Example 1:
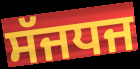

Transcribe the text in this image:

ਸੱਜਧਜ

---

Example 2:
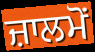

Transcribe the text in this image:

ਜ਼ਾਲਮੋਂ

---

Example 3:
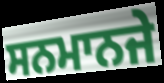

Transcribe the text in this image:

ਸਨਮਾਨਜੇ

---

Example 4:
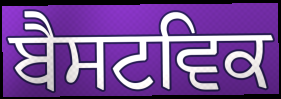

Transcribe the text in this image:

ਬੈਸਟਵਿਕ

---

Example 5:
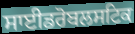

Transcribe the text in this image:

ਸਾਈਡਰੋਬਲਸਟਿਕ